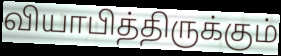
வியாபித்திருக்கும்